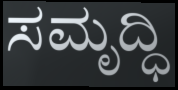
ಸಮೃದ್ಧಿ